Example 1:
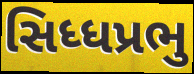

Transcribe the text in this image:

સિધ્ધપ્રભુ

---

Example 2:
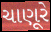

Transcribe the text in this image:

ચાણૂરે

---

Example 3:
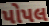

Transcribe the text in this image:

પોપલ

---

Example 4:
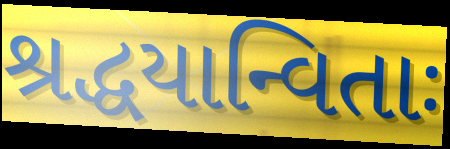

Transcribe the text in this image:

શ્રદ્ધયાન્વિતાઃ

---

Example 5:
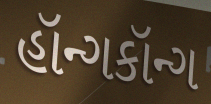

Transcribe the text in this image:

હૉન્ગકૉન્ગ